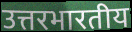
उत्तरभारतीय